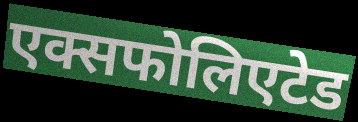
एक्सफोलिएटेड